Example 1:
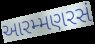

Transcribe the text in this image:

આરમ્મણરસં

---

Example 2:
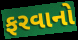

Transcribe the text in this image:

ફરવાનો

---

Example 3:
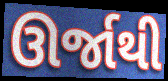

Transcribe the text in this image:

ઊર્જાથી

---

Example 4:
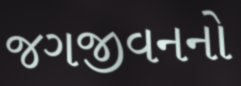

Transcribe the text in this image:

જગજીવનનો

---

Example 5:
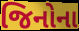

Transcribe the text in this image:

જિનોના